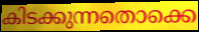
കിടക്കുന്നതൊക്കെ